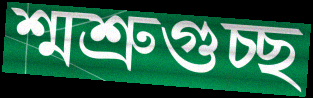
শ্মশ্রুগুচ্ছ